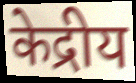
केद्रीय